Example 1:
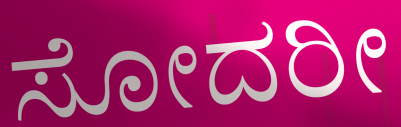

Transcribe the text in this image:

ಸೋದರೀ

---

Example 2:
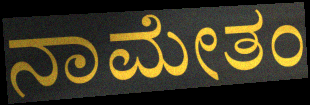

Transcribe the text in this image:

ನಾಮೇತಂ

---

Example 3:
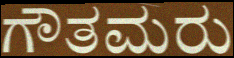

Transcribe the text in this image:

ಗೌತಮರು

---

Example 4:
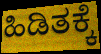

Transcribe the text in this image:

ಹಿಡಿತಕ್ಕೆ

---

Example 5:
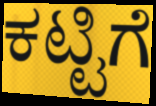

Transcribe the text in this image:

ಕಟ್ಟಿಗೆ